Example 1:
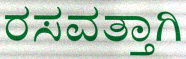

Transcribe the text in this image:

ರಸವತ್ತಾಗಿ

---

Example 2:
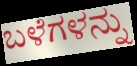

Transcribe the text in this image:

ಬಳೆಗಳನ್ನು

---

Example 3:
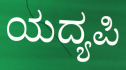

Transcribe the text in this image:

ಯದ್ಯಪಿ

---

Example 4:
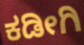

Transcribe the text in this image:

ಕಡೀಗಿ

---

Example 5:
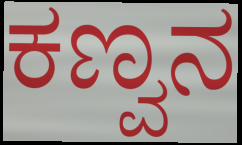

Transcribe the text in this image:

ಕಣ್ವನ